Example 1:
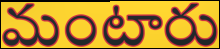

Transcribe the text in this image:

మంటారు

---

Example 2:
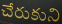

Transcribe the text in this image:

చేరుకుని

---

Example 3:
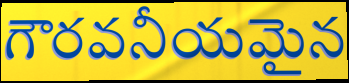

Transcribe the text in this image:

గౌరవనీయమైన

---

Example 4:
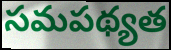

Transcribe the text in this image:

సమపథ్యత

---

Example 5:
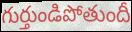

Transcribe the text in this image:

గుర్తుండిపోతుందీ